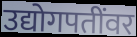
उद्योगपतींवर